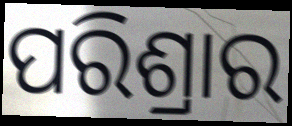
ପରିଶ୍ରାର